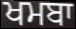
ਖਮਬਾ